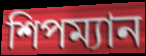
শিপম্যান